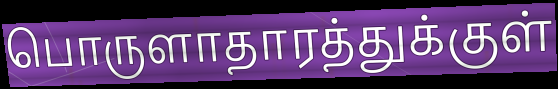
பொருளாதாரத்துக்குள்